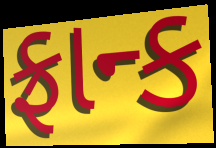
ફ્રાન્ક